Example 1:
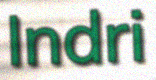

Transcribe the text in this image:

Indri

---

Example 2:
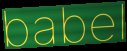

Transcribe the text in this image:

babel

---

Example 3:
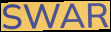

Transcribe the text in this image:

SWAR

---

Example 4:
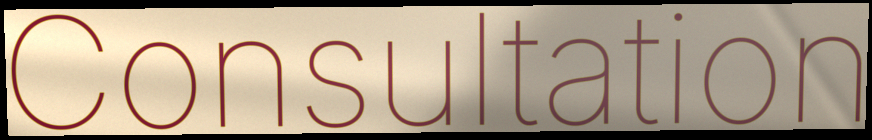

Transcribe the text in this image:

Consultation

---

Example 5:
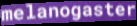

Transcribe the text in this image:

melanogaster